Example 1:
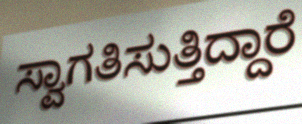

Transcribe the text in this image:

ಸ್ವಾಗತಿಸುತ್ತಿದ್ದಾರೆ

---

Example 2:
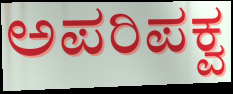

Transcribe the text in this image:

ಅಪರಿಪಕ್ವ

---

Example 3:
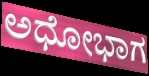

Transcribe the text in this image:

ಅಧೋಭಾಗ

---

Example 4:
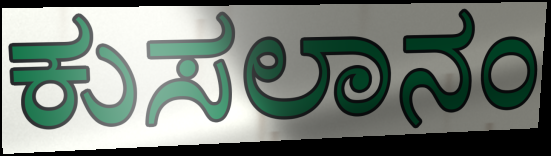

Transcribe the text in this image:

ಕುಸಲಾನಂ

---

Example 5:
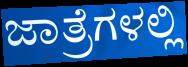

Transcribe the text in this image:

ಜಾತ್ರೆಗಳಲ್ಲಿ